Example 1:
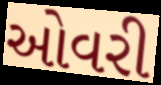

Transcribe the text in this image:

ઓવરી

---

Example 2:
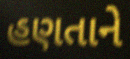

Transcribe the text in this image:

હણતાને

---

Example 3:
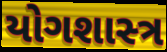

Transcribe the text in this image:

યોગશાસ્‍ત્ર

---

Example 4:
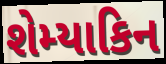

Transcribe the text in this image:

શેમ્યાકિન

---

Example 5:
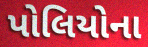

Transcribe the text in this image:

પોલિયોના